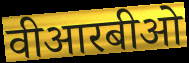
वीआरबीओ